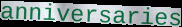
anniversaries